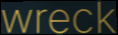
wreck